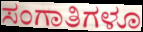
ಸಂಗಾತಿಗಳೂ